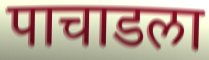
पाचाडला